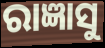
ରାଜ୍ଞାସୁ